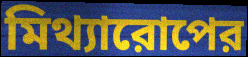
মিথ্যারোপের